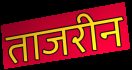
ताजरीन